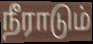
நீராடும்